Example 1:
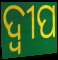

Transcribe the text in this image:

ଦ୍ବୀପ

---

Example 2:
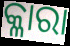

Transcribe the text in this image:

କ୍ଳାରା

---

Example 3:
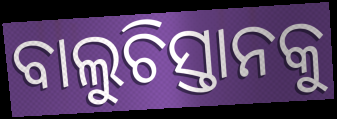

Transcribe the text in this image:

ବାଲୁଚିସ୍ତାନକୁ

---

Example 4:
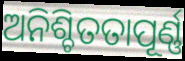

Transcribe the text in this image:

ଅନିଶ୍ଚିତତାପୂର୍ଣ୍ଣ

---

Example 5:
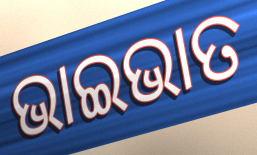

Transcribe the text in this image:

ଭାଇଭାତ